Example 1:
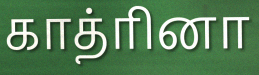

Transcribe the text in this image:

காத்ரினா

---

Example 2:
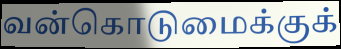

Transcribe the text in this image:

வன்கொடுமைக்குக்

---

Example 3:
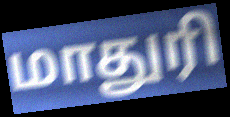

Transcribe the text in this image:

மாதுரி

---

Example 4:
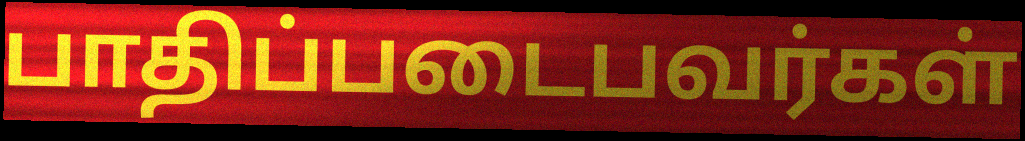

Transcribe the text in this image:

பாதிப்படைபவர்கள்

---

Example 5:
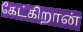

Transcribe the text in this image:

கேட்கிறான்